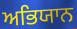
ਅਭਿਯਾਨ